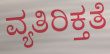
ವ್ಯತಿರಿಕ್ತತೆ